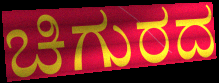
ಚಿಗುರದ